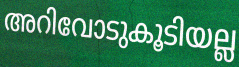
അറിവോടുകൂടിയല്ല